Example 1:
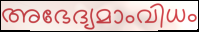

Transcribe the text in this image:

അഭേദ്യമാംവിധം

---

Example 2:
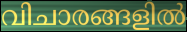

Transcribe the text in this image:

വിചാരങ്ങളിൽ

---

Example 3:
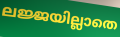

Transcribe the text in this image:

ലജ്ജയില്ലാതെ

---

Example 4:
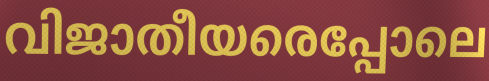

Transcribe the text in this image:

വിജാതീയരെപ്പോലെ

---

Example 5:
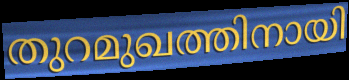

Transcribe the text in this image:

തുറമുഖത്തിനായി